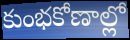
కుంభకోణాల్లో